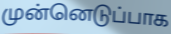
முன்னெடுப்பாக